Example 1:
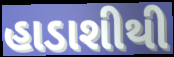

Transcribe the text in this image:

હાડાશીથી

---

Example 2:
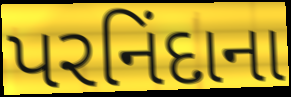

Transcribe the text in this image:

પરનિંદાના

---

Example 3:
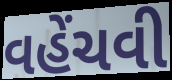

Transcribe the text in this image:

વહેંચવી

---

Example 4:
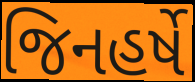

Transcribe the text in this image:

જિનહર્ષે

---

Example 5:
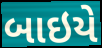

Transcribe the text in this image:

બાઇયે